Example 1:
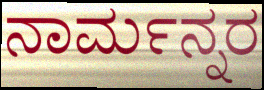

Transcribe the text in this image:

ನಾರ್ಮನ್ನರ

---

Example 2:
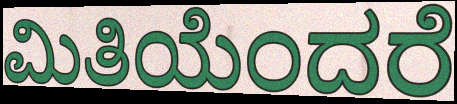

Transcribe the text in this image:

ಮಿತಿಯೆಂದರೆ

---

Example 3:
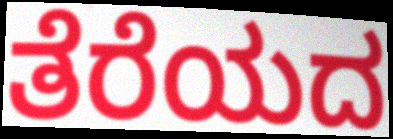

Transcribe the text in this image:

ತೆರೆಯದ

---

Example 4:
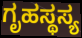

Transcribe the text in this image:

ಗೃಹಸ್ಥಸ್ಯ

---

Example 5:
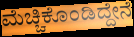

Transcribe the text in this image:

ಮೆಚ್ಚಿಕೊಂಡಿದ್ದೇನೆ